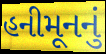
હનીમૂનનું